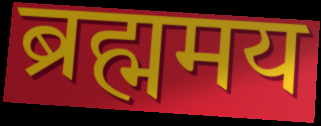
ब्रह्ममय